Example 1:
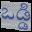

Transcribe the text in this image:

ఒడ్డి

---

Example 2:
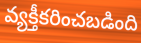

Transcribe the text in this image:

వ్యక్తీకరించబడింది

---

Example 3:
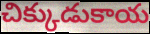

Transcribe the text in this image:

చిక్కుడుకాయ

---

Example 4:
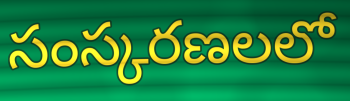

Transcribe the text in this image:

సంస్కరణలలో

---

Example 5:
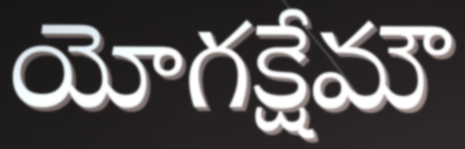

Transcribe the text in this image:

యోగక్షేమౌ